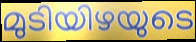
മുടിയിഴയുടെ